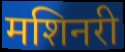
मशिनरी